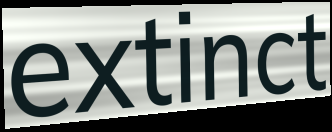
extinct